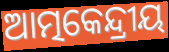
ଆତ୍ମକେନ୍ଦ୍ରୀୟ